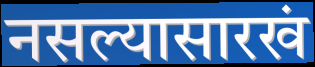
नसल्यासारखं